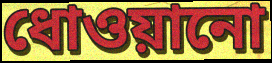
ধোওয়ানো